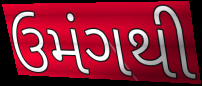
ઉમંગથી